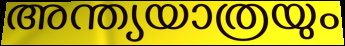
അന്ത്യയാത്രയും